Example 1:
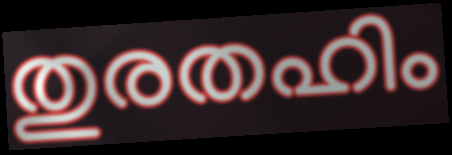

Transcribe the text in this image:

തുരതഹിം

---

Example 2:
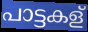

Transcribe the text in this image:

പാട്ടകള്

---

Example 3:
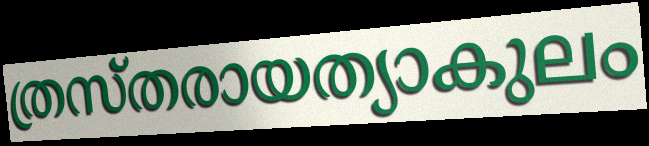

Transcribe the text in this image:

ത്രസ്തരായത്യാകുലം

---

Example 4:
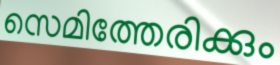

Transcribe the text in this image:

സെമിത്തേരിക്കും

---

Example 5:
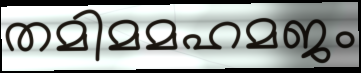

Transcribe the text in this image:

തമിമമഹമജം